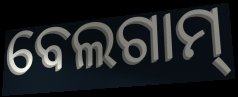
ବେଲଗାମ୍